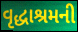
વૃદ્ધાશ્રમની